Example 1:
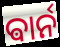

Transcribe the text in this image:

ଵାର୍ନ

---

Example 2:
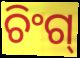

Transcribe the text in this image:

ଚିଂଗ୍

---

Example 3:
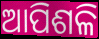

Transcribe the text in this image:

ଆପିଶଳି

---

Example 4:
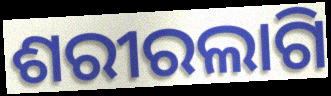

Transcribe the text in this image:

ଶରୀରଲାଗି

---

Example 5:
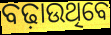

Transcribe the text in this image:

ବଢ଼ାଉଥିବେ